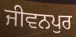
ਜੀਵਨਪੁਰ